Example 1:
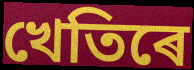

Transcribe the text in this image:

খেতিৰে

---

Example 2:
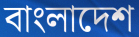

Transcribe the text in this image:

বাংলাদেশ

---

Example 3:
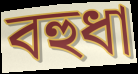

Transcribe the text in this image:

বহুধা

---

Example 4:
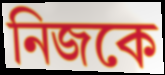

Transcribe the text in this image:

নিজকে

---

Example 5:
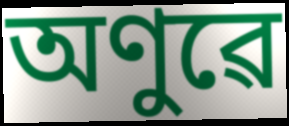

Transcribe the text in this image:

অণুৱে